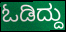
ಓಡಿದ್ದು